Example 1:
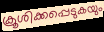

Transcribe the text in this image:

ക്രൂശിക്കപ്പെടുകയും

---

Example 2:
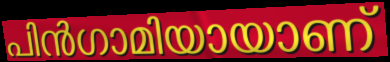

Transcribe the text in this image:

പിൻഗാമിയായാണ്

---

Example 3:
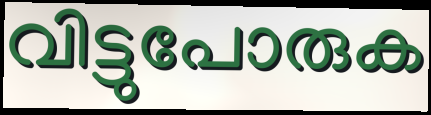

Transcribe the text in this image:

വിട്ടുപോരുക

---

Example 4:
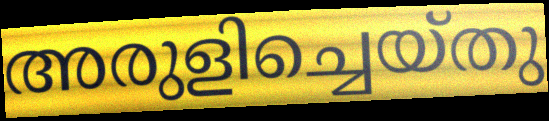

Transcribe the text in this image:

അരുളിച്ചെയ്തു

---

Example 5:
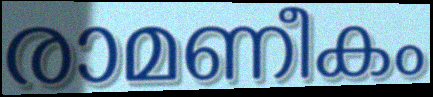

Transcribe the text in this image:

രാമണീകം